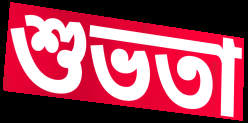
শুভতা